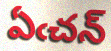
ఏఁచన్